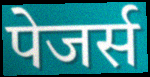
पेजर्स